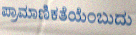
ಪ್ರಾಮಾಣಿಕತೆಯೆಂಬುದು